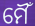
ମୈଁ